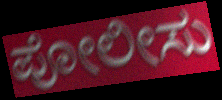
ಪೋಲೀಸು